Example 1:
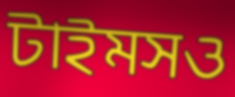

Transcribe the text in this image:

টাইমসও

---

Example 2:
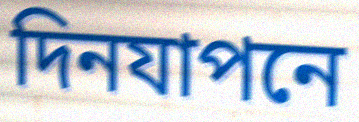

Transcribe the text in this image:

দিনযাপনে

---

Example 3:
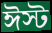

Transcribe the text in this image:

ঈস্ট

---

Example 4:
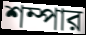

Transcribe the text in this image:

শম্পার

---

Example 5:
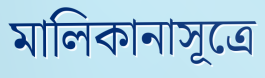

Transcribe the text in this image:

মালিকানাসূত্রে